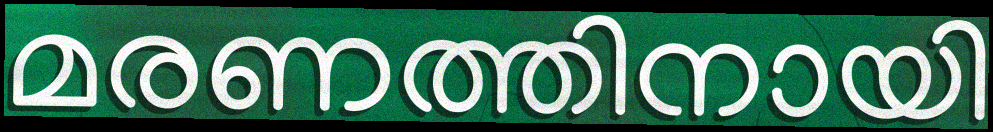
മരണത്തിനായി